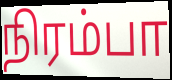
நிரம்பா